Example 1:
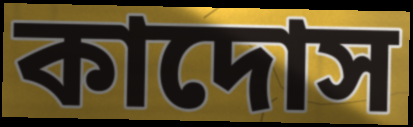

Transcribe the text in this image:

কাদোস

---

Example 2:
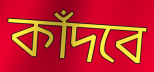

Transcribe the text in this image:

কাঁদবে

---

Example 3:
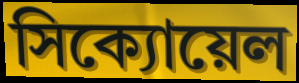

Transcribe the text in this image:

সিক্যোয়েল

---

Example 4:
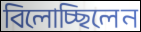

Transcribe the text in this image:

বিলোচ্ছিলেন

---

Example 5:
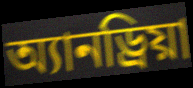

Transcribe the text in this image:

অ্যানড্রিয়া